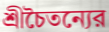
শ্রীচৈতন্যের